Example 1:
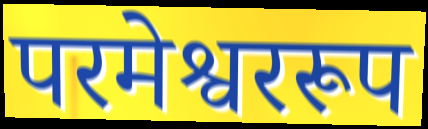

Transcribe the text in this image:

परमेश्वररूप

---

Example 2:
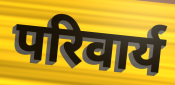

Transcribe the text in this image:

परिवार्य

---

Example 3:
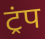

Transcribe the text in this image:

ट्रंप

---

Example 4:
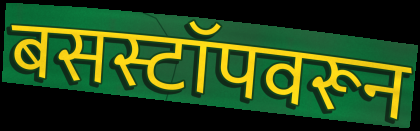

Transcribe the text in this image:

बसस्टॉपवरून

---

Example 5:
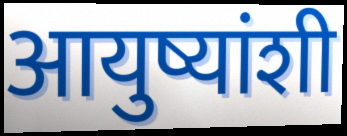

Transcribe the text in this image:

आयुष्यांशी